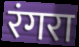
रंगरा